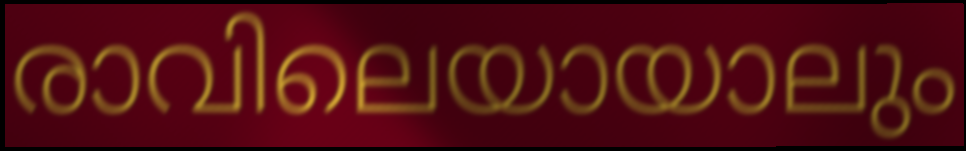
രാവിലെയായാലും